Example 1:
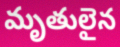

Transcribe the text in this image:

మృతులైన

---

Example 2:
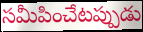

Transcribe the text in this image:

సమీపించేటప్పుడు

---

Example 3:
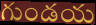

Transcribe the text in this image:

గుండయ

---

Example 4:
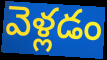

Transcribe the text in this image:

వెళ్లడం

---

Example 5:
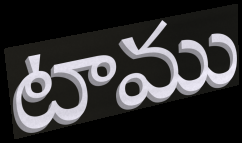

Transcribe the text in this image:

టాము